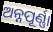
ଅନ୍ନପୂର୍ଣ୍ଣା